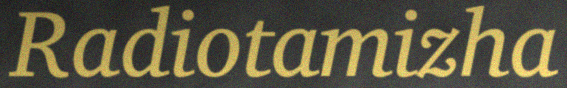
Radiotamizha